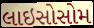
લાઇસોસોમ